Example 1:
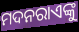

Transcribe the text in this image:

ମଦନରାଏଙ୍କୁ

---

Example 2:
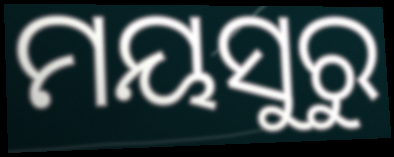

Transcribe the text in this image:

ମୟସୁରୁ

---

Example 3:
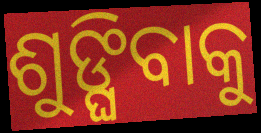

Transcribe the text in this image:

ଶୁଙ୍ଘିବାକୁ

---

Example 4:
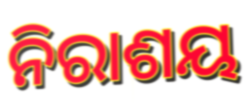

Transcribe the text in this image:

ନିରାଶୟ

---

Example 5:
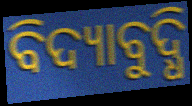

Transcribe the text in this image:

ବିଦ୍ୟାବୁଦ୍ଧି